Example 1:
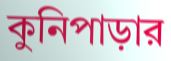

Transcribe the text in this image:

কুনিপাড়ার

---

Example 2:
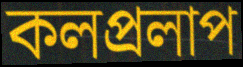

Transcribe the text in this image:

কলপ্রলাপ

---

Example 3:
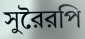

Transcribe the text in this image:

সুরৈরপি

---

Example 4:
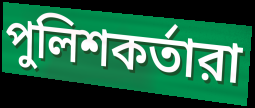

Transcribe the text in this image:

পুলিশকর্তারা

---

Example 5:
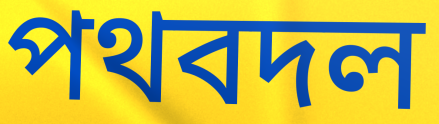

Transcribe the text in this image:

পথবদল